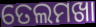
ତେଲମଖା